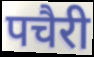
पचैरी